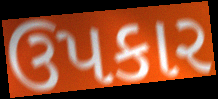
ઉપકાર